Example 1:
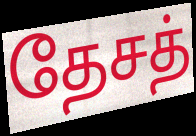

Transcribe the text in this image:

தேசத்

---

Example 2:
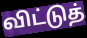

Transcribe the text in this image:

விட்டுத்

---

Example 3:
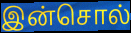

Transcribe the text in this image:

இன்சொல்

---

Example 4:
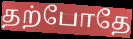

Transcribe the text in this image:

தற்போதே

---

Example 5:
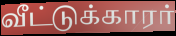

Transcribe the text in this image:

வீட்டுக்காரர்